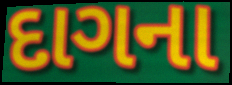
દાગના